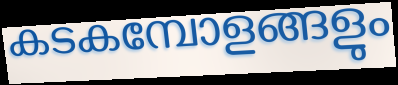
കടകമ്പോളങ്ങളും